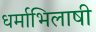
धर्माभिलाषी